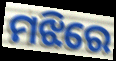
ମଝିରେ